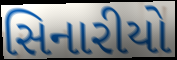
સિનારીયો